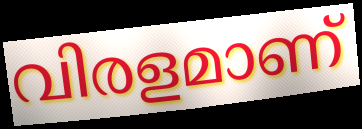
വിരളമാണ്